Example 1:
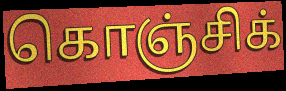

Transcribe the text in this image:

கொஞ்சிக்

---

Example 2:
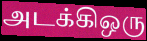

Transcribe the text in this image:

அடக்கிஒரு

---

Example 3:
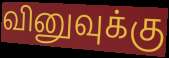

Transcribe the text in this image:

வினுவுக்கு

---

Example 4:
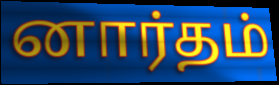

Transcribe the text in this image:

னார்தம்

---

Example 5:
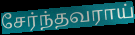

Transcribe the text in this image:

சேர்ந்தவராய்